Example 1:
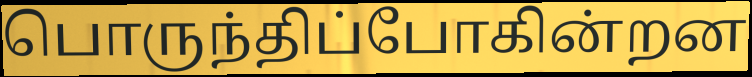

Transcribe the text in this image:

பொருந்திப்போகின்றன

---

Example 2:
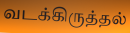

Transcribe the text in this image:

வடக்கிருத்தல்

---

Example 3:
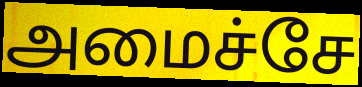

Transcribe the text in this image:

அமைச்சே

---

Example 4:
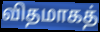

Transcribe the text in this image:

விதமாகத்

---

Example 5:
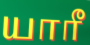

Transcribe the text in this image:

யாரீ